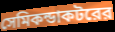
সেমিকন্ডাকটরের